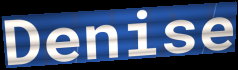
Denise